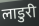
लाडुरी